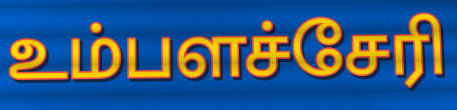
உம்பளச்சேரி